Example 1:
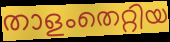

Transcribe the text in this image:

താളംതെറ്റിയ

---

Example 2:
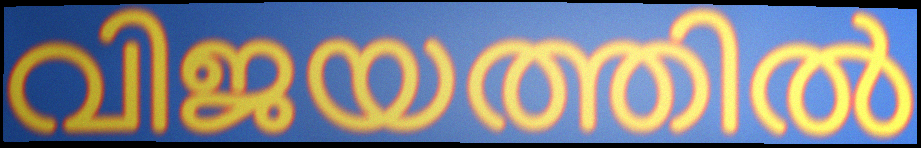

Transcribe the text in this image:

വിജയത്തിൽ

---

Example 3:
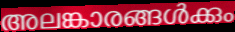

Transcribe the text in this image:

അലങ്കാരങ്ങൾക്കും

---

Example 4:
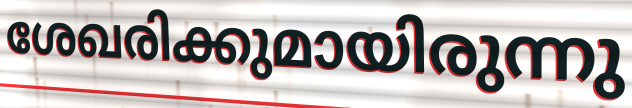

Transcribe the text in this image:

ശേഖരിക്കുമായിരുന്നു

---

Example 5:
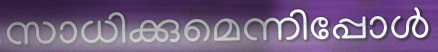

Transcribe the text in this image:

സാധിക്കുമെന്നിപ്പോൾ